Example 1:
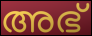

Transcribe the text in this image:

അഭ്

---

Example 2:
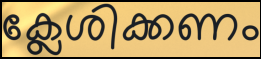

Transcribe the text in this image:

ക്ലേശിക്കണം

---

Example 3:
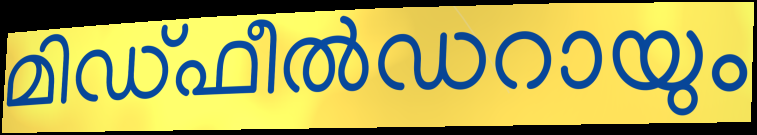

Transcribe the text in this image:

മിഡ്ഫീൽഡറായും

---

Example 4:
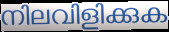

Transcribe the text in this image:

നിലവിളിക്കുക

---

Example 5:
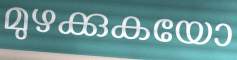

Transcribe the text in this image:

മുഴക്കുകയോ